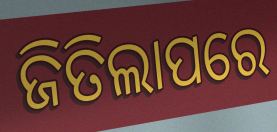
ଜିତିଲାପରେ